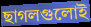
ছাগলগুলোই